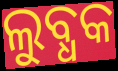
ଲୁବ୍ଧକ